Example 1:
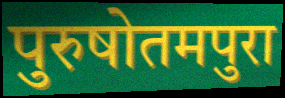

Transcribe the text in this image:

पुरुषोतमपुरा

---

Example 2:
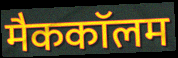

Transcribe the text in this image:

मैककॉलम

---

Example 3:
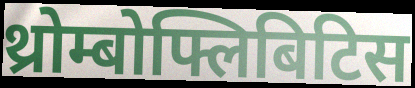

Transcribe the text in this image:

थ्रोम्बोफ्लिबिटिस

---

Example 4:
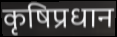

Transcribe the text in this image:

कृषिप्रधान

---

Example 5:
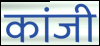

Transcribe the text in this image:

कांजी